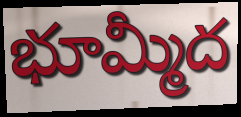
భూమ్మీద